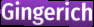
Gingerich